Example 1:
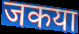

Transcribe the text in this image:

जकया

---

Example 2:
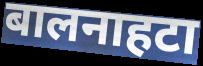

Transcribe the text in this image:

बालनाहटा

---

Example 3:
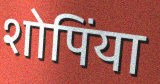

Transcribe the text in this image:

शोपिंया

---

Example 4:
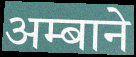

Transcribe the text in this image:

अम्बाने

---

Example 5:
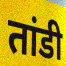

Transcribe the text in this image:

तांडी